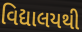
વિદ્યાલયથી